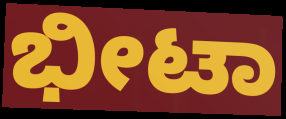
ಭೀಟಾ